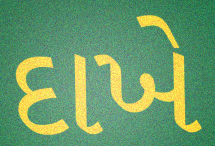
દાખે